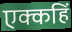
एक्कहिं